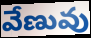
వేణువు